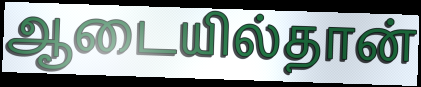
ஆடையில்தான்